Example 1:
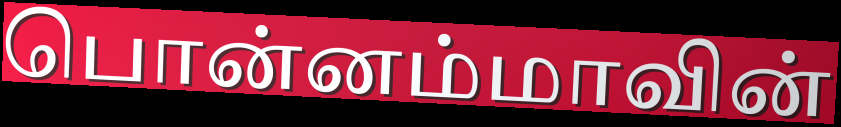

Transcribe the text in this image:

பொன்னம்மாவின்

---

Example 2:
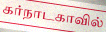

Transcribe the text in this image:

கர்நாடகாவில்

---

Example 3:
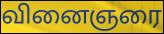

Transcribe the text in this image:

வினைஞரை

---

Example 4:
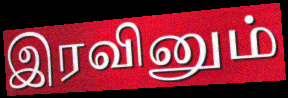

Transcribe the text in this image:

இரவினும்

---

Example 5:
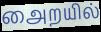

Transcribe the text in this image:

அைறயில்